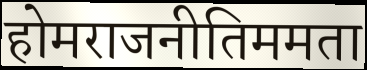
होमराजनीतिममता